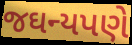
જઘન્યપણે